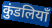
कुंडलियाँ